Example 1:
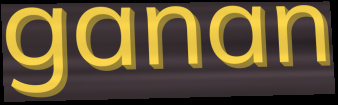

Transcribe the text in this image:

ganan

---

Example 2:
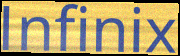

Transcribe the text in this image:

Infinix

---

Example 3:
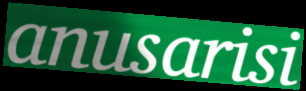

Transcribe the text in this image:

anusarisi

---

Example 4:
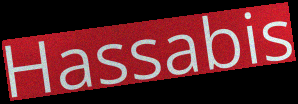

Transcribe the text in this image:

Hassabis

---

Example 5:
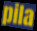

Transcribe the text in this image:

pila